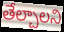
తేల్చాలని